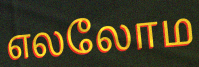
எலலோம